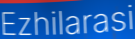
Ezhilarasi